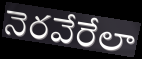
నెరవేరేలా